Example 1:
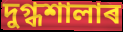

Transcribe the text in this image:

দুগ্ধশালাৰ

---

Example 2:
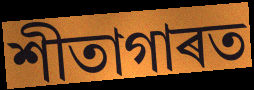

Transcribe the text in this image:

শীতাগাৰত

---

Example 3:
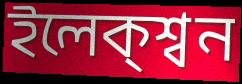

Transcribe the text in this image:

ইলেক্‌শ্বন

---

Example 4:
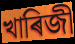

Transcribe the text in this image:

খাৰিজী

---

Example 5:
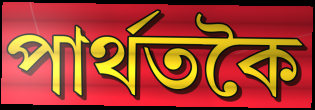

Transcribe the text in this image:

পাৰ্থতকৈ